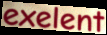
exelent